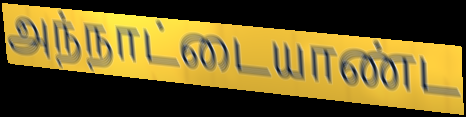
அந்நாட்டையாண்ட